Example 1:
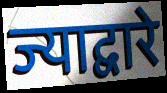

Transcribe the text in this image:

ज्याद्वारे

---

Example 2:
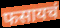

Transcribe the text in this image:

फसायचं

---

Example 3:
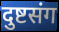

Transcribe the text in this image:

दुष्टसंग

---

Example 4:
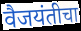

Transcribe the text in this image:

वैजयंतीचा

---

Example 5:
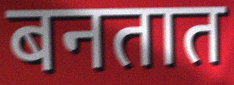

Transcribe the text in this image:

बनतात